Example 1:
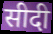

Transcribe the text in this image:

सीदी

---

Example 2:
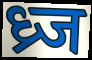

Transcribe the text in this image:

ध्र्ज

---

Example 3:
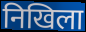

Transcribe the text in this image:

निखिला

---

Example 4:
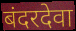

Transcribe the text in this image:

बंदरदेवा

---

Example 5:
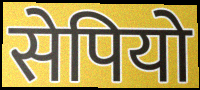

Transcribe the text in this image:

सेपियो